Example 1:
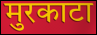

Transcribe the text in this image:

मुरकाटा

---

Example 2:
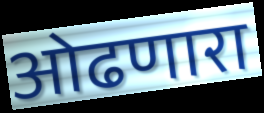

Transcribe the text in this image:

ओढणारा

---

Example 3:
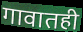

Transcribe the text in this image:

गावातही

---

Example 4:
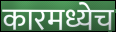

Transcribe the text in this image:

कारमध्येच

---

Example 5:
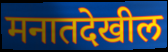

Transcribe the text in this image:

मनातदेखील